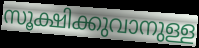
സൂക്ഷിക്കുവാനുള്ള